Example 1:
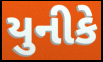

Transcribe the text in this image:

યુનીકે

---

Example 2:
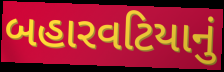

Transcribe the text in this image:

બહારવટિયાનું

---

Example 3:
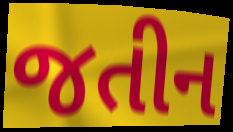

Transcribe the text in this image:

જતીન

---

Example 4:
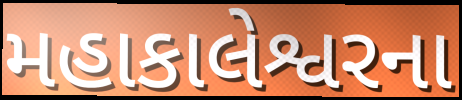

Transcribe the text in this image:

મહાકાલેશ્વરના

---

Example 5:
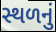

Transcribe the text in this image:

સ્થળનું